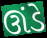
ઊંડે